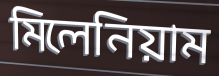
মিলেনিয়াম